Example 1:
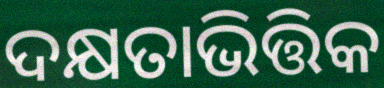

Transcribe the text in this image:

ଦକ୍ଷତାଭିତ୍ତିକ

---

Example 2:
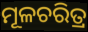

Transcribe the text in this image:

ମୂଳଚରିତ୍ର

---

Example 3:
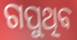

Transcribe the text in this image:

ଗପୁଥିବ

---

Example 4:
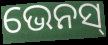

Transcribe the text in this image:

ଭେନସ୍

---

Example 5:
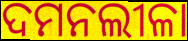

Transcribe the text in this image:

ଦମନଲୀଳା